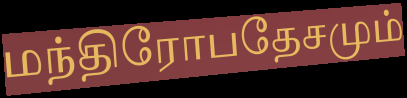
மந்திரோபதேசமும்